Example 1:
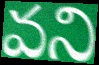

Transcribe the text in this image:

వని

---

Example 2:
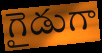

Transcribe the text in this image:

గైడుగా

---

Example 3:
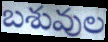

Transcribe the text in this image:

బశువుల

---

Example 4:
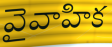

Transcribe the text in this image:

వైవాహిక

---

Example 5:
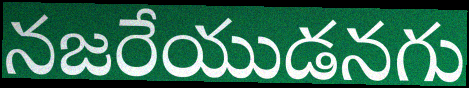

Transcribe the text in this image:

నజరేయుడనగు